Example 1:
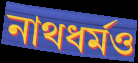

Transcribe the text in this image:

নাথধর্মও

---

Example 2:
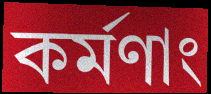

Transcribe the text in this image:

কর্মণাং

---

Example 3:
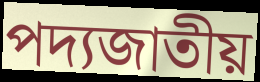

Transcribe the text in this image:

পদ্যজাতীয়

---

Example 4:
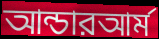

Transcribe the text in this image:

আন্ডারআর্ম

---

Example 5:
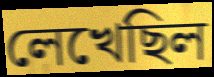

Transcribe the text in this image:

লেখেছিল